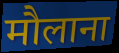
मौलाना